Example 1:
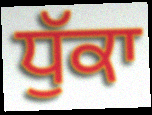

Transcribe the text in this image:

ਧੁੱਕਾ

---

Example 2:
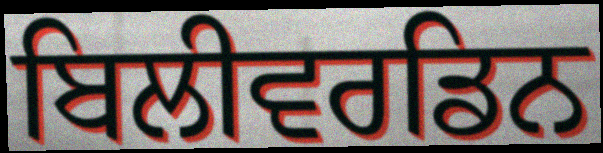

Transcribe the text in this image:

ਬਿਲੀਵਰਡਿਨ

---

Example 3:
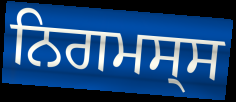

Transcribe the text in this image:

ਨਿਗਮਸ੍ਸ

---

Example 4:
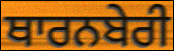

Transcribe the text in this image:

ਥਾਰਨਬੇਰੀ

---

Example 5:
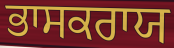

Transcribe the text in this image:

ਭਾਸਕਰਾਯ